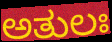
ಅತುಲಃ